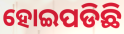
ହୋଇପଡିଛି